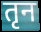
तृन